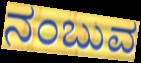
ನಂಬುವ